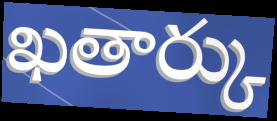
ఖతార్కు